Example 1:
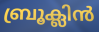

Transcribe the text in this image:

ബ്രൂക്ലിൻ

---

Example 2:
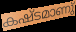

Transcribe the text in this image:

കഷ്ടമാണു്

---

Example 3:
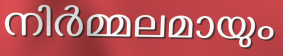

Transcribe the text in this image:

നിർമ്മലമായും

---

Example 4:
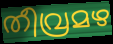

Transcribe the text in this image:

തീവ്രമഴ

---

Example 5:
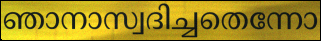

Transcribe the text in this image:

ഞാനാസ്വദിച്ചതെന്നോ